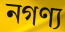
নগণ্য